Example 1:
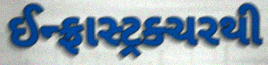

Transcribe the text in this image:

ઈન્ફ્રાસ્ટ્રક્ચરથી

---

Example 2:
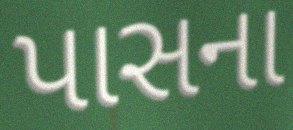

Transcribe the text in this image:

પાસના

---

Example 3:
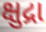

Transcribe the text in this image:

ક્ષુદ્રા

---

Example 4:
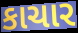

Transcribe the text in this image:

કાચાર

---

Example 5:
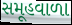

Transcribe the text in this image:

સમૂહવાળા